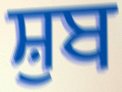
ਸ਼ੁਬ